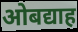
ओबद्याह